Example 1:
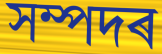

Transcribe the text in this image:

সম্পদৰ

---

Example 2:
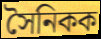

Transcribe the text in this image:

সৈনিকক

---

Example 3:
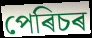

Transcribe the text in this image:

পেৰিচৰ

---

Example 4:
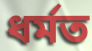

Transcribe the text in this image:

ধৰ্মত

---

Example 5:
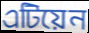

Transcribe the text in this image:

এটিয়েন